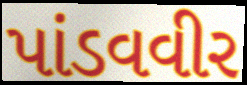
પાંડવવીર